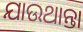
ଯାଉଥାନ୍ତା